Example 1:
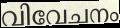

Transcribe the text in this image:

വിവേചനം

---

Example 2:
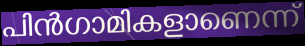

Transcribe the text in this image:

പിൻഗാമികളാണെന്ന്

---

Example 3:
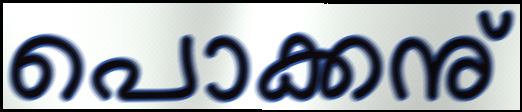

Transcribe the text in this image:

പൊക്കനു്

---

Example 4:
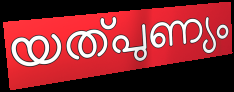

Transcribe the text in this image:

യത്പുണ്യം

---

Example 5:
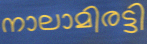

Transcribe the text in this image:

നാലാമിരട്ടി